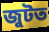
জুটত